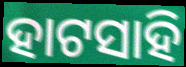
ହାଟସାହି